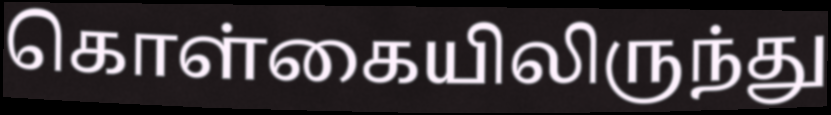
கொள்கையிலிருந்து